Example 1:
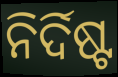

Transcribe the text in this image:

ନିର୍ଦିଷ୍ଟ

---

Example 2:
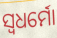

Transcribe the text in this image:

ସ୍ୱଧର୍ମୋ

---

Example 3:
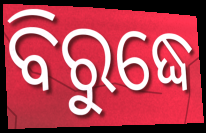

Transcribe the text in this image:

ବିରୁଦ୍ଧେ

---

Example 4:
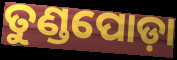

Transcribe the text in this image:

ତୁଣ୍ଡପୋଡ଼ା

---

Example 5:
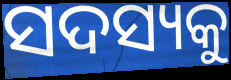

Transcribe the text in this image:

ସଦସ୍ୟକୁ